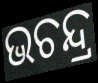
ଭଚନ୍ଦ୍ର